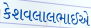
કેશવલાલભાઈએ